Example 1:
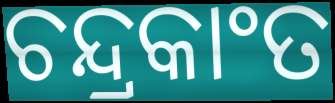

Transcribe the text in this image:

ଚନ୍ଦ୍ରକାଂତ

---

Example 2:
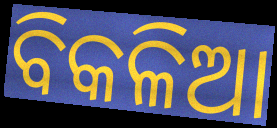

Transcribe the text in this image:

ବିକଳିଆ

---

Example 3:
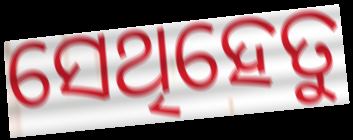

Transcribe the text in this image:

ସେଥିହେତୁ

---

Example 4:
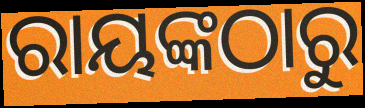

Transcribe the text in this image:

ରାୟଙ୍କଠାରୁ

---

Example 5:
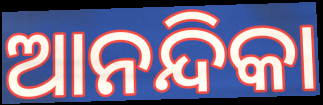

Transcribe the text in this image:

ଆନନ୍ଦିକା